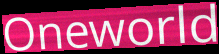
Oneworld